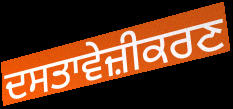
ਦਸਤਾਵੇਜ਼ੀਕਰਣ